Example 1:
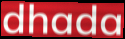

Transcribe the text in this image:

dhada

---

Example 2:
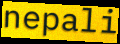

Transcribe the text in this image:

nepali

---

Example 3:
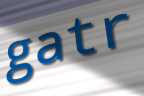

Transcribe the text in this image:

gatr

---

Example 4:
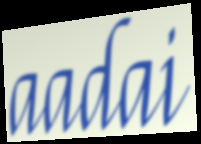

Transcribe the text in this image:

aadai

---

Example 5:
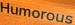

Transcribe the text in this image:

Humorous